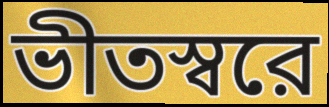
ভীতস্বরে